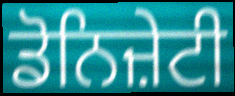
ਡੋਨਿਜ਼ੇਟੀ